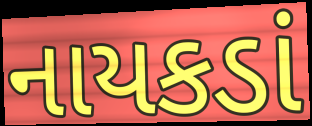
નાયકડાં